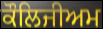
ਕੌਲਿਜੀਅਮ